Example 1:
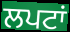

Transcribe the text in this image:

ਲਪਟਾਂ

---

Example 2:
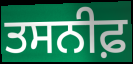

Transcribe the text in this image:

ਤਸਨੀਫ਼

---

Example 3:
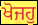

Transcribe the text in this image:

ਖੋਜਹੁ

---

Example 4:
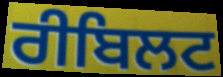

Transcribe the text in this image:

ਰੀਬਿਲਟ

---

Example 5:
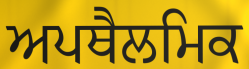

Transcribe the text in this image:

ਅਪਥੈਲਮਿਕ